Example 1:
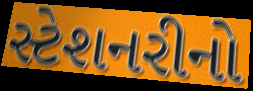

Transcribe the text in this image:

સ્ટેશનરીનો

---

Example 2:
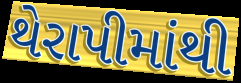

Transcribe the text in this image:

થેરાપીમાંથી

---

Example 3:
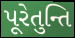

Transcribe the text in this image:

પૂરેતુન્તિ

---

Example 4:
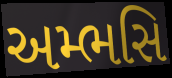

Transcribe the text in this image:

અમ્ભસિ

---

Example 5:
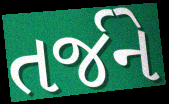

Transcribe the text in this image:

તર્જને